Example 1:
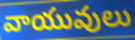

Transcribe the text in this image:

వాయువులు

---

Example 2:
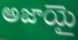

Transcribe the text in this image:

అజాయై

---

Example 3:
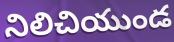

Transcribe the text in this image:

నిలిచియుండ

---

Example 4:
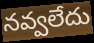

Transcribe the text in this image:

నవ్వలేదు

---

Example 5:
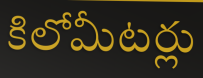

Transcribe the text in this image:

కిలోమీటర్లు